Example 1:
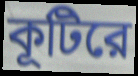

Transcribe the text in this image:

কূটিরে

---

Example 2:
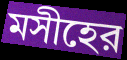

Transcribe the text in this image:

মসীহের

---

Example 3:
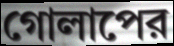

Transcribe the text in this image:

গোলাপের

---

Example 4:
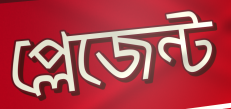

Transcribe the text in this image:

প্লেজেন্ট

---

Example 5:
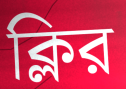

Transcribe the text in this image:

ক্লির